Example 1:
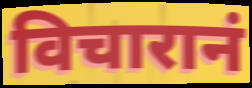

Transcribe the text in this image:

विचारानं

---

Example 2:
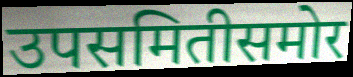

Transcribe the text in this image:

उपसमितीसमोर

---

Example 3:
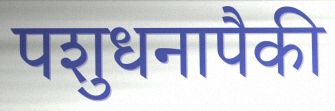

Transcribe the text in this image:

पशुधनापैकी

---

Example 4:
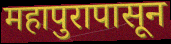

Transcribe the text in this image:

महापुरापासून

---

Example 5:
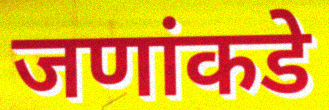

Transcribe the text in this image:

जणांकडे